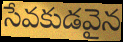
సేవకుడవైన